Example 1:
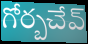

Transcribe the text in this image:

గోర్బచేవ్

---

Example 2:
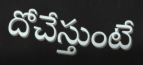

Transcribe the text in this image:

దోచేస్తుంటే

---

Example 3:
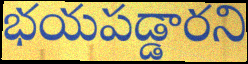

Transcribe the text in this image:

భయపడ్డారని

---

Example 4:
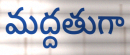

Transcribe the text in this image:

మద్దతుగా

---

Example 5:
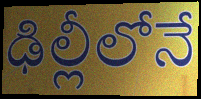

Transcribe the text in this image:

ఢిల్లీలోనే